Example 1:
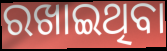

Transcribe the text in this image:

ରଖାଇଥିବା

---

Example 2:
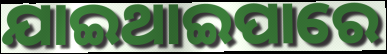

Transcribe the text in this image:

ଯାଇଥାଇପାରେ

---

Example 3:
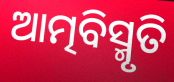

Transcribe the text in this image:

ଆତ୍ମବିସ୍ମୃତି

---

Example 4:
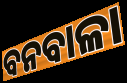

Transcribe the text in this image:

ବନବାଳା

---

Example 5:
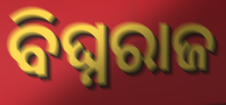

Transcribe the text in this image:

ବିଘ୍ନରାଜ